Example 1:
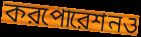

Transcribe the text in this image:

করপোরেশনও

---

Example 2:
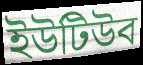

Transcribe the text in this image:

ইউটিউব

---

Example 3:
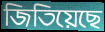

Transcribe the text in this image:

জিতিয়েছে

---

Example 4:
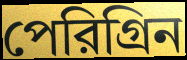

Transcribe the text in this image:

পেরিগ্রিন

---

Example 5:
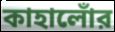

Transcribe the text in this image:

কাহালোঁর